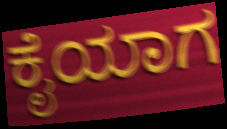
ಕೈಯಾಗ